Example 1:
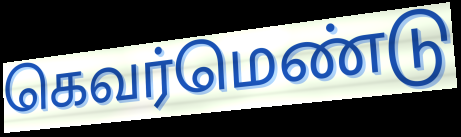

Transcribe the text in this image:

கெவர்மெண்டு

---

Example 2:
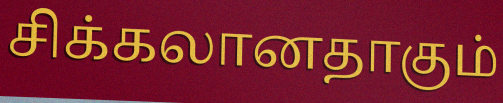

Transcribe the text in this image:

சிக்கலானதாகும்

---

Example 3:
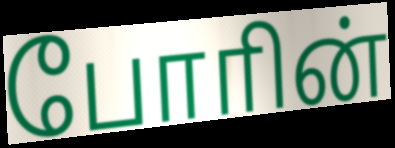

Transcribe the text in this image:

போரின்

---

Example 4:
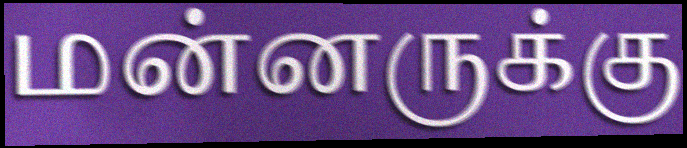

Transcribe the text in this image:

மன்னருக்கு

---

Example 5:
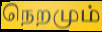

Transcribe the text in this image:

நெறமும்